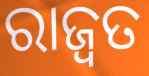
ରାଜ୍ୱତ